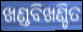
ଖଣ୍ଡବିଖଣ୍ଡିତ